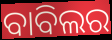
ବାବିଲର